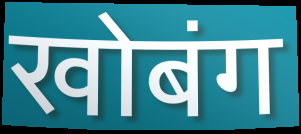
खोबंग